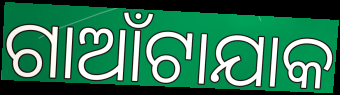
ଗାଆଁଟାଯାକ